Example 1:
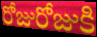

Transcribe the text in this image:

రోజురోజుకి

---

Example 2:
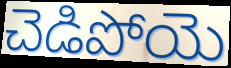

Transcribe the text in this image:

చెడిపోయె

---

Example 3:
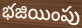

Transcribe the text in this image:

భజియింపు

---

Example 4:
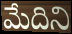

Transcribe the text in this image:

మేదిని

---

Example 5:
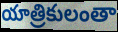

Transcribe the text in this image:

యాత్రికులంతా